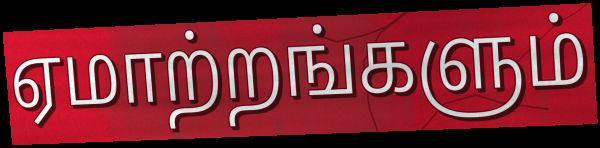
ஏமாற்றங்களும்